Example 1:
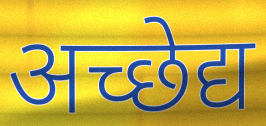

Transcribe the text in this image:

अच्छेद्य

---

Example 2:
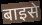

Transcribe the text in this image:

बाइसे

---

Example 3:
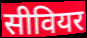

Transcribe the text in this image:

सीवियर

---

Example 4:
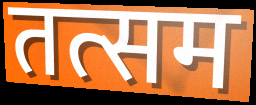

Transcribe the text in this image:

तत्सम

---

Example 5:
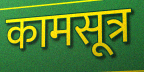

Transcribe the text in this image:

कामसूत्र